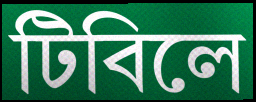
টিবিলে